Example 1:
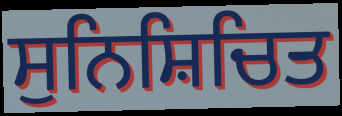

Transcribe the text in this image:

ਸੁਨਿਸ਼ਿਚਿਤ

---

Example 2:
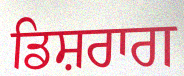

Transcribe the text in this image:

ਡਿਸ਼ਰਾਗ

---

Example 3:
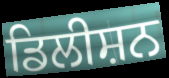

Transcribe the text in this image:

ਡਿਲੀਸ਼ਨ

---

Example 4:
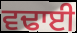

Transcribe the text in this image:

ਵਢਾਈ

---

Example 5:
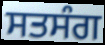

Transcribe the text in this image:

ਸਤਸੰਗ